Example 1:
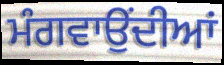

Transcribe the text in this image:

ਮੰਗਵਾਉਂਦੀਆਂ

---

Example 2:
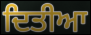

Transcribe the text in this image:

ਦਿਤੀਆ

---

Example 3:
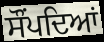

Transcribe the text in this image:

ਸੌਂਪਦਿਆਂ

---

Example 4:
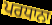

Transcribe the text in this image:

ਪਰਧਾਨਾ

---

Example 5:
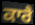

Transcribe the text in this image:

ਕਾਰੈ